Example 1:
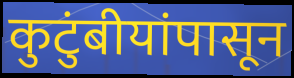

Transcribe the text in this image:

कुटुंबीयांपासून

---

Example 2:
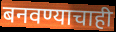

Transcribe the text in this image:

बनवण्याचाही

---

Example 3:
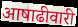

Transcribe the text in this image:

आषाढीवारी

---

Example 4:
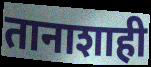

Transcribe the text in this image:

तानाशाही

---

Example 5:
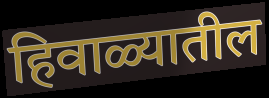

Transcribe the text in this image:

हिवाळ्यातील